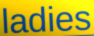
ladies